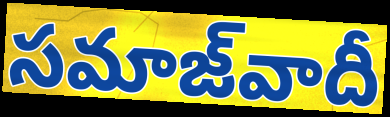
సమాజ్‌వాదీ